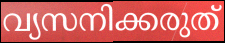
വ്യസനിക്കരുത്